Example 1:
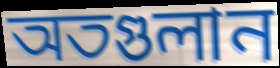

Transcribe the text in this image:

অতগুলান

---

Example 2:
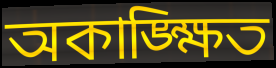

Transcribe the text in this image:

অকাঙ্ক্ষিত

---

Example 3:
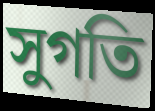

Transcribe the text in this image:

সুগতি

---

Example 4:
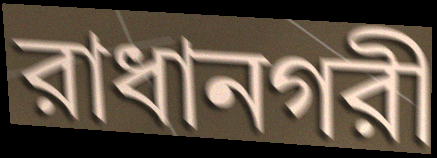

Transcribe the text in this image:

রাধানগরী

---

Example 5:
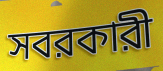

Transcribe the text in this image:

সবরকারী